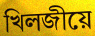
খিলজীয়ে